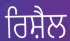
ਰਿਸ਼ੈਲ